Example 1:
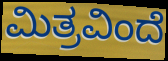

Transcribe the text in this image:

ಮಿತ್ರವಿಂದೆ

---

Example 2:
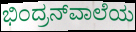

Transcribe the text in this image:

ಭಿಂದ್ರನ್‌ವಾಲೆಯ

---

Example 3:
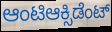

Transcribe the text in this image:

ಆಂಟಿಆಕ್ಸಿಡೆಂಟ್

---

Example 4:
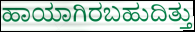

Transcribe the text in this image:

ಹಾಯಾಗಿರಬಹುದಿತ್ತು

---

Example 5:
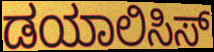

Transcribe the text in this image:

ಡಯಾಲಿಸಿಸ್